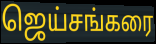
ஜெய்சங்கரை